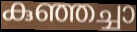
കുഞ്ഞച്ചാ